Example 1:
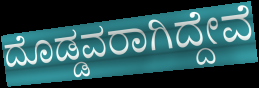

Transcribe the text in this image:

ದೊಡ್ಡವರಾಗಿದ್ದೇವೆ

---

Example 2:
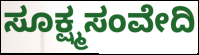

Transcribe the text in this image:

ಸೂಕ್ಷ್ಮಸಂವೇದಿ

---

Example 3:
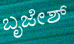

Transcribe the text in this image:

ಬೃಜೇಶ್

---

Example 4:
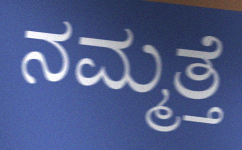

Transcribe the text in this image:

ನಮ್ಮತ್ತೆ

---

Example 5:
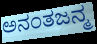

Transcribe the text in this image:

ಅನಂತಜನ್ಮ